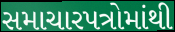
સમાચારપત્રોમાંથી